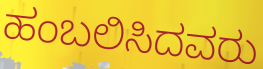
ಹಂಬಲಿಸಿದವರು